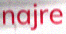
najre